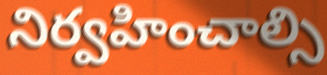
నిర్వహించాల్సి